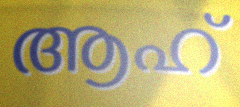
ആഹ്